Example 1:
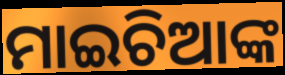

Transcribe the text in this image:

ମାଇଚିଆଙ୍କ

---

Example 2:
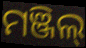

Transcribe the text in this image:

ମଞ୍ଜିଲ୍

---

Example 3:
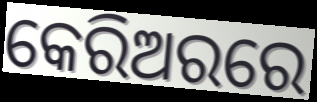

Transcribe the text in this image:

କେରିଅରରେ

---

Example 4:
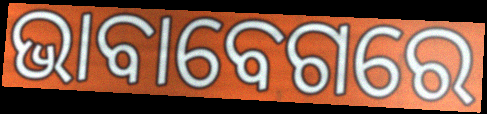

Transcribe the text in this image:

ଭାବାବେଗରେ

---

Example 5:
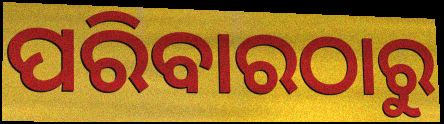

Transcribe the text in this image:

ପରିବାରଠାରୁ